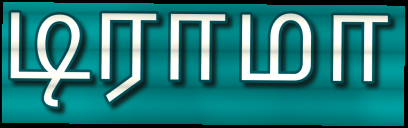
டிராமா